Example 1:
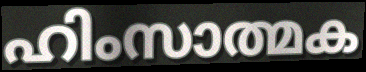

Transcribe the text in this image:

ഹിംസാത്മക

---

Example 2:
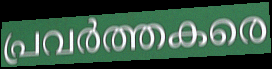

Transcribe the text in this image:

പ്രവർത്തകരെ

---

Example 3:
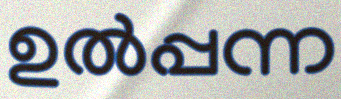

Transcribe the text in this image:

ഉൽപ്പന്ന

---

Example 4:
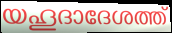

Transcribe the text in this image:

യഹൂദാദേശത്ത്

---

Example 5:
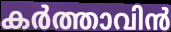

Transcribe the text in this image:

കർത്താവിൻ